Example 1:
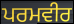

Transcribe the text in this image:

ਪਰਮਵੀਰ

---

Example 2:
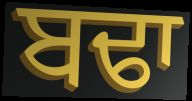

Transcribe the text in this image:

ਬਢਾ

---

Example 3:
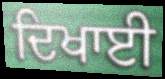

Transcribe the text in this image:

ਦਿਖਾਈ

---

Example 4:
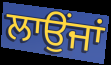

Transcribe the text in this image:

ਲਾਉਂਜਾਂ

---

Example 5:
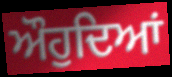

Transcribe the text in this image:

ਔਹੁਦਿਆਂ